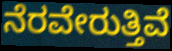
ನೆರವೇರುತ್ತಿವೆ